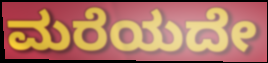
ಮರೆಯದೇ